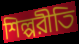
শিল্পরীতি